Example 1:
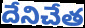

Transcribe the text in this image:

దేనిచేత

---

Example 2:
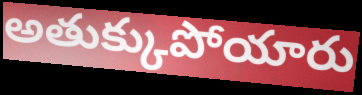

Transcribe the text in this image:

అతుక్కుపోయారు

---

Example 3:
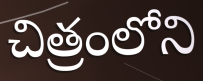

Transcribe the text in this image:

చిత్రంలోని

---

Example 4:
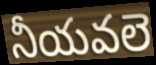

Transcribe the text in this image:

నీయవలె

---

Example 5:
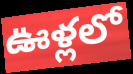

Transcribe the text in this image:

ఊళ్లలో